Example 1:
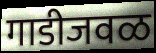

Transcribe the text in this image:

गाडीजवळ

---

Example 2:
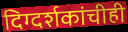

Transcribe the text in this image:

दिग्दर्शकांचीही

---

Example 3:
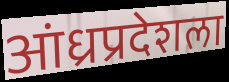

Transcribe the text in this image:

आंध्रप्रदेशला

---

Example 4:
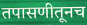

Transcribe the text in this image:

तपासणीतूनच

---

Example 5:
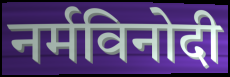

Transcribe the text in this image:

नर्मविनोदी